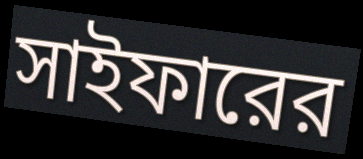
সাইফারের